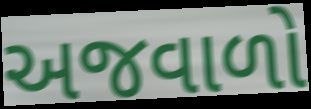
અજવાળો